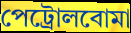
পেট্রোলবোমা